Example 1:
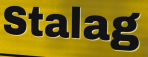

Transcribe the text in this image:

Stalag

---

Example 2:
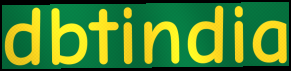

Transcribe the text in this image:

dbtindia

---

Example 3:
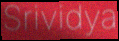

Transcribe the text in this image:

Srividya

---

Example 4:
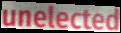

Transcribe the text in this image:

unelected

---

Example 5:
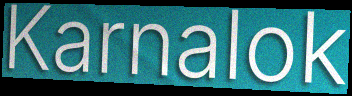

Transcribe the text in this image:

Karnalok